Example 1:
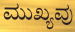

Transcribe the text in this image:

ಮುಖ್ಯವು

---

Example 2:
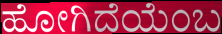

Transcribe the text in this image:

ಹೋಗಿದೆಯೆಂಬ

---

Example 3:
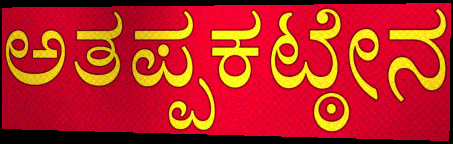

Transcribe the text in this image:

ಅತಪ್ಪಕಟ್ಠೇನ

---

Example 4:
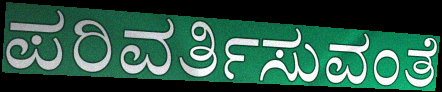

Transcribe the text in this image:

ಪರಿವರ್ತಿಸುವಂತೆ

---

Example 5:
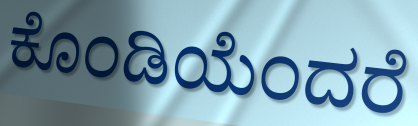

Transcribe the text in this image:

ಕೊಂಡಿಯೆಂದರೆ